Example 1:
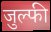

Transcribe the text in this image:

जुल्फी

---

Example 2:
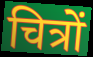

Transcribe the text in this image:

चित्रों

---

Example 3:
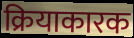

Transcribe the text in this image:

क्रियाकारक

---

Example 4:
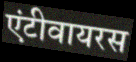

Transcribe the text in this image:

एंटीवायरस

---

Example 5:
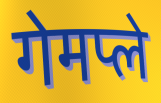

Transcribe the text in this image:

गेमप्ले